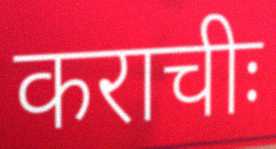
कराचीः